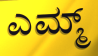
ಎಮ್ಮ್